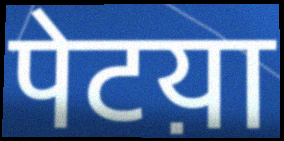
पेटय़ा